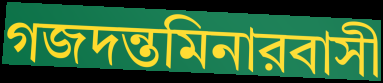
গজদন্তমিনারবাসী